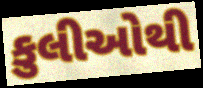
કુલીઓથી